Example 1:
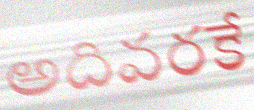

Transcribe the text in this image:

అదివరకే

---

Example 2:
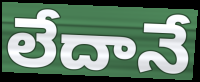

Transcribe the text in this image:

లేదానే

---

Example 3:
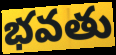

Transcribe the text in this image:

భవతు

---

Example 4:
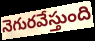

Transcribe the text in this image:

నెగురవేస్తుంది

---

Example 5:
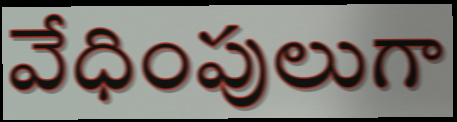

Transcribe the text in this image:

వేధింపులుగా